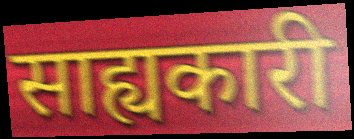
साह्यकारी